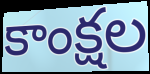
కాంక్షల